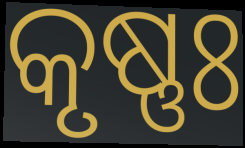
କୃଷ୍ଣଃ